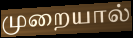
முறையால்